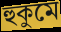
হুকুমে